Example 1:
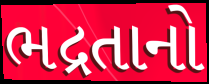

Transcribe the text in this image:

ભદ્રતાનો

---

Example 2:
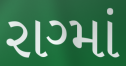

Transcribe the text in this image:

રાગ્માં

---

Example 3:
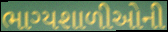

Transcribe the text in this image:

ભાગ્યશાળીઓની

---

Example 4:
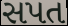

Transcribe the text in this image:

સપત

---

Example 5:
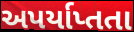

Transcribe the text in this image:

અપર્યાપ્તતા